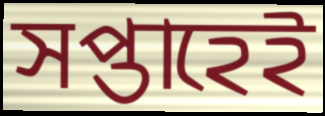
সপ্তাহেই